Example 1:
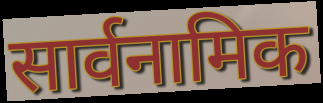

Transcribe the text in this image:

सार्वनामिक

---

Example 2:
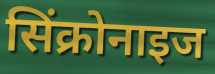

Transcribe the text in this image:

सिंक्रोनाइज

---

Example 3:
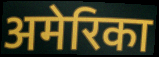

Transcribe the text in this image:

अमेरिका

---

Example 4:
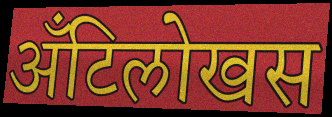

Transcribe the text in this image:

अँटिलोखस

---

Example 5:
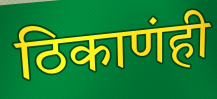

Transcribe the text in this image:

ठिकाणंही